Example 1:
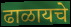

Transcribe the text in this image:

ढाळायचे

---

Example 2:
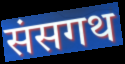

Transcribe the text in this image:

संसगथ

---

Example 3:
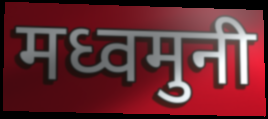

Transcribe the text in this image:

मध्वमुनी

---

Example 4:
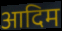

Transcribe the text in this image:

आदिम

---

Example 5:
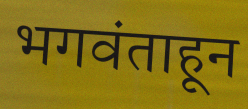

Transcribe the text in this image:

भगवंताहून